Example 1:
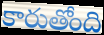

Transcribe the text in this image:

కారుతోంది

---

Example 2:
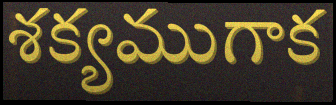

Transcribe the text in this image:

శక్యముగాక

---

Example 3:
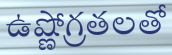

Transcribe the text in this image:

ఉష్ణోగ్రతలతో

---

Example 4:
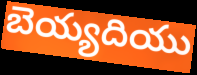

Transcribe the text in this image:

బెయ్యదియు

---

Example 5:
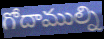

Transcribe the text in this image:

గోదాముల్ని